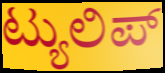
ಟ್ಯುಲಿಪ್